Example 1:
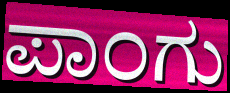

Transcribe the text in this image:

ಪಾಂಗು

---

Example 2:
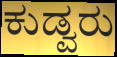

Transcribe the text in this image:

ಕುಡ್ವರು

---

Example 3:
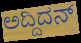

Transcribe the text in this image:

ಅದ್ದಿದನ್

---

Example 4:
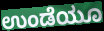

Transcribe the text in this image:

ಉಂಡೆಯೂ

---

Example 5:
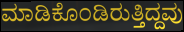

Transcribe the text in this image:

ಮಾಡಿಕೊಂಡಿರುತ್ತಿದ್ದವು